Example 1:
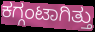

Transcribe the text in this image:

ಕಗ್ಗಂಟಾಗಿತ್ತು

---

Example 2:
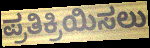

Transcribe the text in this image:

ಪ್ರತಿಕ್ರಿಯಿಸಲು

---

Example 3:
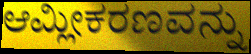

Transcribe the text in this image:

ಆಮ್ಲೀಕರಣವನ್ನು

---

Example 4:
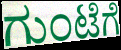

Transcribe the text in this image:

ಗುಂಟೆಗೆ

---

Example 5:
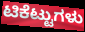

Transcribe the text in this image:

ಟಿಕೆಟ್ಟುಗಳು